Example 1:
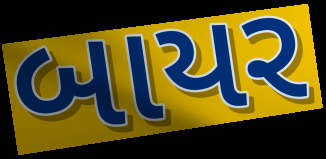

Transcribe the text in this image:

બાયર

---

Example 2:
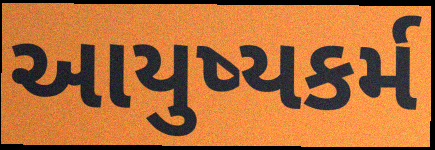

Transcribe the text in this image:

આયુષ્યકર્મ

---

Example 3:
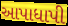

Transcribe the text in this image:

આપાધાપી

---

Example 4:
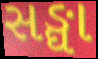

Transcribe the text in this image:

સઙ્ઘા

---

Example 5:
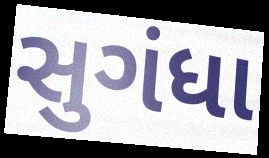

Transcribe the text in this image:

સુગંધા